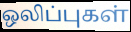
ஒலிப்புகள்